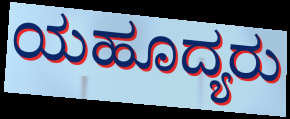
ಯಹೂದ್ಯರು